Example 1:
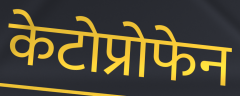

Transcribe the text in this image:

केटोप्रोफेन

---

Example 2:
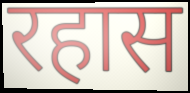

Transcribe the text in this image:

रहास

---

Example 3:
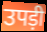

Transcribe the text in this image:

उपड़ी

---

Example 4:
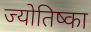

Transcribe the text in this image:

ज्योतिष्का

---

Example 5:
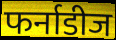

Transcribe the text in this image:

फर्नाडीज